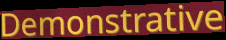
Demonstrative